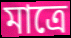
মাত্ৰে